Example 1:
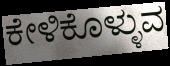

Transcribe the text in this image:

ಕೇಳಿಕೊಳ್ಳುವ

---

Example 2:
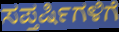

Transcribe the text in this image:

ಸಪ್ತರ್ಷಿಗಳಿಗೆ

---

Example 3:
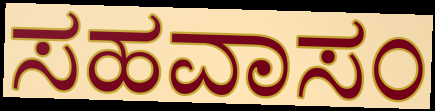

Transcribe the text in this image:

ಸಹವಾಸಂ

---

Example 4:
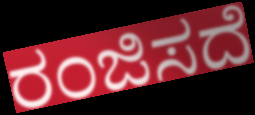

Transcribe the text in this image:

ರಂಜಿಸದೆ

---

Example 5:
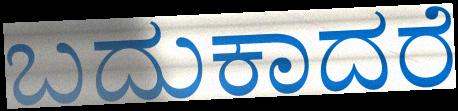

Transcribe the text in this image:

ಬದುಕಾದರೆ